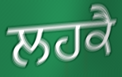
ਲਹਕੈ